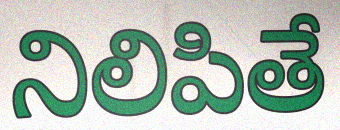
నిలిపితే